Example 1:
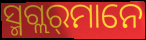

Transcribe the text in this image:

ସ୍ମଗ୍ଲର୍‌ମାନେ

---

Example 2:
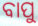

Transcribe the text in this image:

ବାପୁ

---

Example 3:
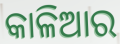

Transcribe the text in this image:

କାଳିଆର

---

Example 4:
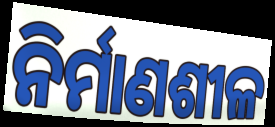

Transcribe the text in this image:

ନିର୍ମାଣଶୀଳ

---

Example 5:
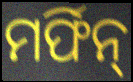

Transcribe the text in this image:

ମର୍ଫିନ୍